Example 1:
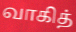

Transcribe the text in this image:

வாகித்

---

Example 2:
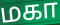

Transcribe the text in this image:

மகா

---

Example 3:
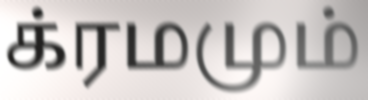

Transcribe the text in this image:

க்ரமமும்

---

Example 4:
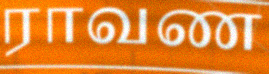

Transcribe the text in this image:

ராவண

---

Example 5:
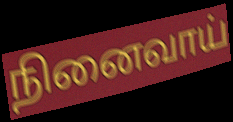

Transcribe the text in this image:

நினைவாய்